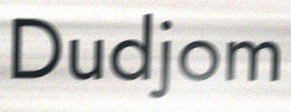
Dudjom